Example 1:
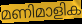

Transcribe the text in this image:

മണിമാളിക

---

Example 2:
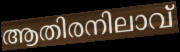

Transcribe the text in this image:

ആതിരനിലാവ്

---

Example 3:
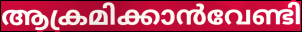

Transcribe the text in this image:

ആക്രമിക്കാൻവേണ്ടി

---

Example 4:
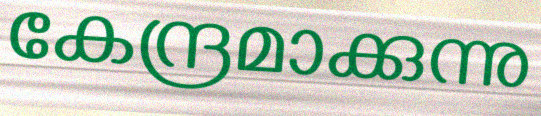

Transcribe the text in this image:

കേന്ദ്രമാക്കുന്നു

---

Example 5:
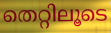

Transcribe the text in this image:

തെറ്റിലൂടെ